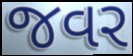
જવર